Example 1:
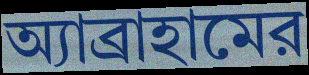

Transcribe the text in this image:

অ্যাব্রাহামের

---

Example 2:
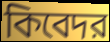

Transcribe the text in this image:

কিবেদর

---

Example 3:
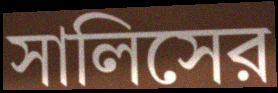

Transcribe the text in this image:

সালিসের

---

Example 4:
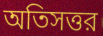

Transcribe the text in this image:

অতিসত্তর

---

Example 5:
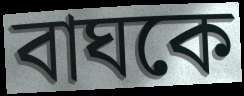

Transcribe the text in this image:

বাঘকে